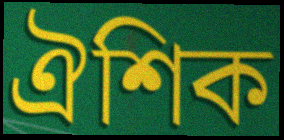
ঐশিক